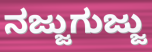
ನಜ್ಜುಗುಜ್ಜು